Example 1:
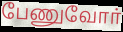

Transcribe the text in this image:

பேணுவோர்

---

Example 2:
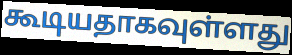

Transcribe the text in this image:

கூடியதாகவுள்ளது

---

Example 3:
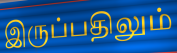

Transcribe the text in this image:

இருப்பதிலும்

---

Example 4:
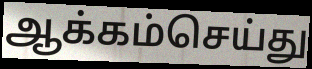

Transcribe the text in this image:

ஆக்கம்செய்து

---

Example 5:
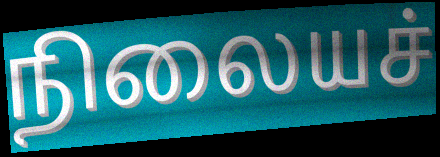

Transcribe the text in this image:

நிலையச்